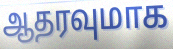
ஆதரவுமாக